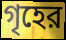
গৃহের